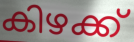
കിഴക്ക്